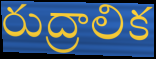
రుద్రాలిక